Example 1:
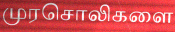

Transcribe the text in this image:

முரசொலிகளை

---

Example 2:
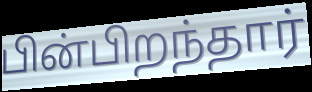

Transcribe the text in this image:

பின்பிறந்தார்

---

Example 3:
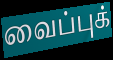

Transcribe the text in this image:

வைப்புக்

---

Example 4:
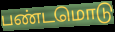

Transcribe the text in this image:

பண்டமொடு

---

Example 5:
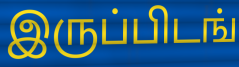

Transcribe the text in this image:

இருப்பிடங்